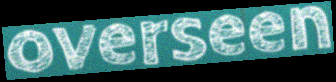
overseen